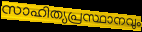
സാഹിത്യപ്രസ്ഥാനവും